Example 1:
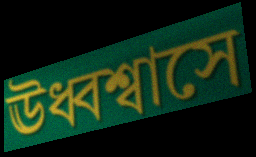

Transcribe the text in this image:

ঊধ্বশ্বাসে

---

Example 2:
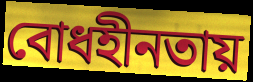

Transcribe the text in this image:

বোধহীনতায়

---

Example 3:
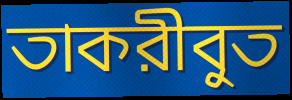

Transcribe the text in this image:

তাকরীবুত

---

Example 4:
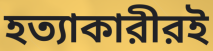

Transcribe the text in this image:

হত্যাকারীরই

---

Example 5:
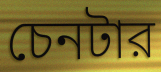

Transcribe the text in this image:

চেনটার